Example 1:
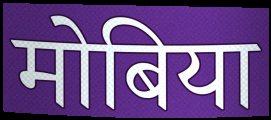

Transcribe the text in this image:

मोबिया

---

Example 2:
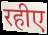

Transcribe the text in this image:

रहीए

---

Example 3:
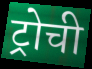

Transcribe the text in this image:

ट्रोची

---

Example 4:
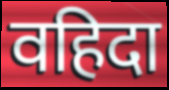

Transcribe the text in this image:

वहिदा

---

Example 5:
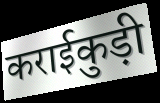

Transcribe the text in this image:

कराईकुड़ी